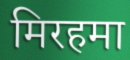
मिरहमा